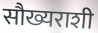
सौख्यराशी